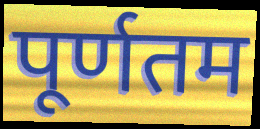
पूर्णतम